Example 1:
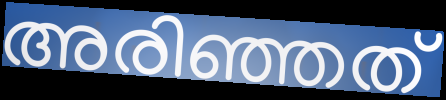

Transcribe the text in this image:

അരിഞ്ഞത്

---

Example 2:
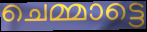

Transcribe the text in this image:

ചെമ്മാട്ടെ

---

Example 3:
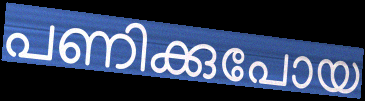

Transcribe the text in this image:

പണിക്കുപോയ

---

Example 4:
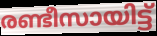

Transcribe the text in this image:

രണ്ടീസായിട്ട്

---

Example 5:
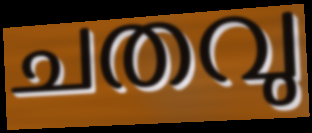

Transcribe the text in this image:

ചതവു